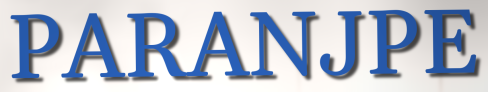
PARANJPE